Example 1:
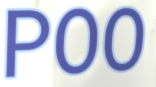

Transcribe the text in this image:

POO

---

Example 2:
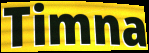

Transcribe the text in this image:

Timna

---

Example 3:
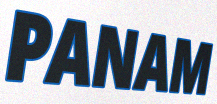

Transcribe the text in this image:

PANAM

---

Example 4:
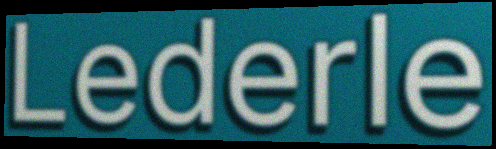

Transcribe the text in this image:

Lederle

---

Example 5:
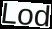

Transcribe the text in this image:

Lod